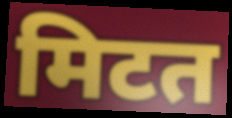
मिटत